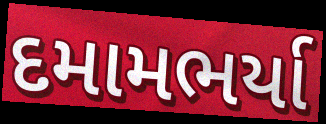
દમામભર્યા